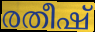
രതീഷ്